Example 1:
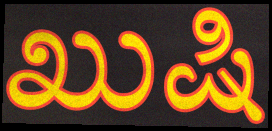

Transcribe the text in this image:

ಖುಷಿ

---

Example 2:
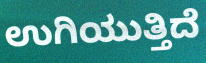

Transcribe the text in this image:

ಉಗಿಯುತ್ತಿದೆ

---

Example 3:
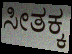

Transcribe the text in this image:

ಸೀತಕ್ಕ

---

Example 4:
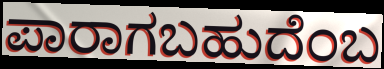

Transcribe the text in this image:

ಪಾರಾಗಬಹುದೆಂಬ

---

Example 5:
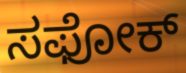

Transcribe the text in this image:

ಸಫೋಕ್